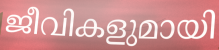
ജീവികളുമായി